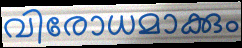
വിരോധമാക്കും